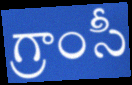
గ్రాంసీ